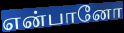
என்பானோ